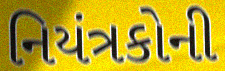
નિયંત્રકોની